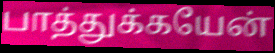
பாத்துக்கயேன்